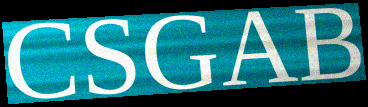
CSGAB